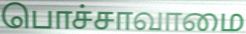
பொச்சாவாமை